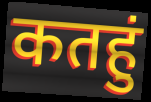
कतहुं